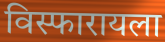
विस्फारायला